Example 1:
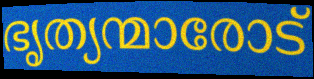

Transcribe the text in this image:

ഭൃത്യന്മാരോട്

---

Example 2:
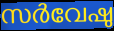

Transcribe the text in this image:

സർവേഷു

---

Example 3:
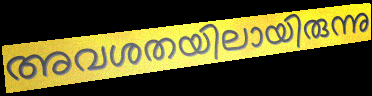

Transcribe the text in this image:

അവശതയിലായിരുന്നു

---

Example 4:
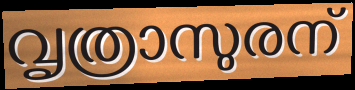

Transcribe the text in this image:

വൃത്രാസുരന്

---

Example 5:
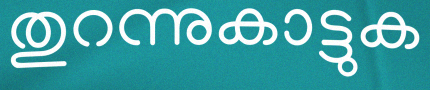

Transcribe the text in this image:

തുറന്നുകാട്ടുക